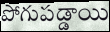
పోగుపడ్డాయి